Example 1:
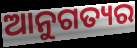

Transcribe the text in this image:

ଆନୁଗତ୍ୟର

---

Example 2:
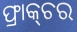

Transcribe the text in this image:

ଫ୍ରାକ୍‌ଚର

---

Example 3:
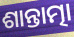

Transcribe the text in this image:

ଶାନ୍ତାତ୍ମା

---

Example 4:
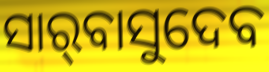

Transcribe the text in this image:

ସାର୍‌ବାସୁଦେବ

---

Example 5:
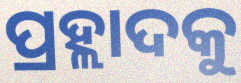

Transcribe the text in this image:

ପ୍ରହ୍ଲାଦକୁ